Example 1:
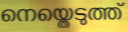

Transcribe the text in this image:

നെയ്തെടുത്ത്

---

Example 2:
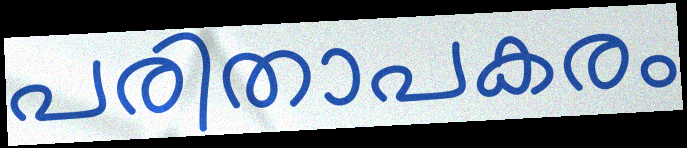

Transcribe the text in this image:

പരിതാപകരം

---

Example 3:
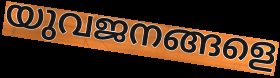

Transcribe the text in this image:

യുവജനങ്ങളെ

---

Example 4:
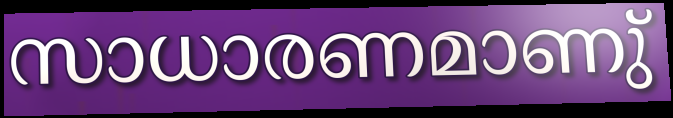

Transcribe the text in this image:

സാധാരണമാണു്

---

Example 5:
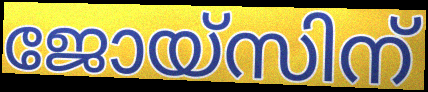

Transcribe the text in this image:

ജോയ്സിന്